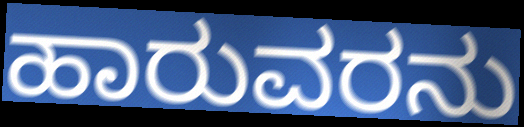
ಹಾರುವರನು